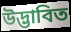
উদ্ভাবিত